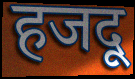
हजदू